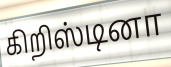
கிறிஸ்டினா